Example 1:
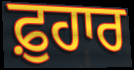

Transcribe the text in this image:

ਫ਼ੁਹਾਰ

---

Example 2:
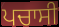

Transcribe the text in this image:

ਪਚਾਸੀ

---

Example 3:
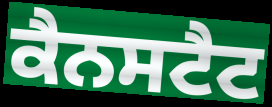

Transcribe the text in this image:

ਕੈਨਸਟੈਟ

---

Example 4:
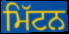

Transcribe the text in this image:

ਮਿੱਟਨ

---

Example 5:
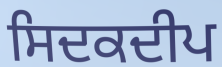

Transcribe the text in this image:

ਸਿਦਕਦੀਪ